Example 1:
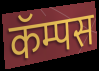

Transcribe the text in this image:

कॅम्पस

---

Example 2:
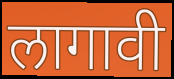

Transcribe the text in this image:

लागावी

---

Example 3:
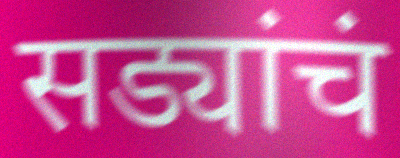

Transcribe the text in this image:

सड्यांचं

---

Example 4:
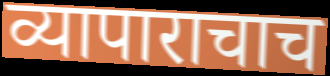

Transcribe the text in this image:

व्यापाराचाच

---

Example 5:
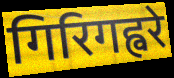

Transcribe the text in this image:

गिरिगह्वरे